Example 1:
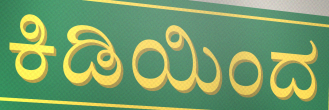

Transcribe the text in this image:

ಕಿಡಿಯಿಂದ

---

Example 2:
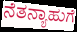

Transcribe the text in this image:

ನೆತನ್ಯಾಹುಗೆ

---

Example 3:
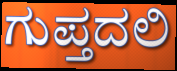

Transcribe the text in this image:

ಗುಪ್ತದಲಿ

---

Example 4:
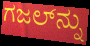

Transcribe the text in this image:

ಗಜಲ್‍ನ್ನು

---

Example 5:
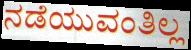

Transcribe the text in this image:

ನಡೆಯುವಂತಿಲ್ಲ